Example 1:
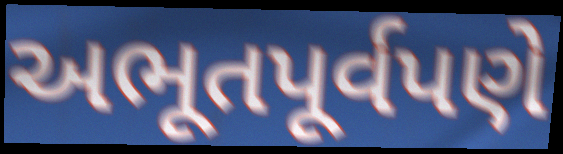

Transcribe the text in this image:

અભૂતપૂર્વપણે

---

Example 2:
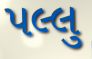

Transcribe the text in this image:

પલ્લુ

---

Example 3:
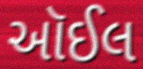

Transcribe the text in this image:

ઑઈલ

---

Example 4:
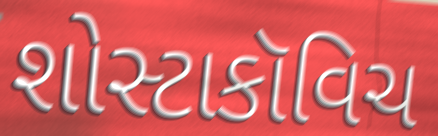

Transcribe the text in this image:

શોસ્ટાકૉવિચ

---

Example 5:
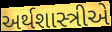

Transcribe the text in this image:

અર્થશાસ્ત્રીએ